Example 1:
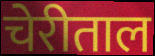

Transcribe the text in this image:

चेरीताल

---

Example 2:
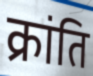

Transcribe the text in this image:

क्रांति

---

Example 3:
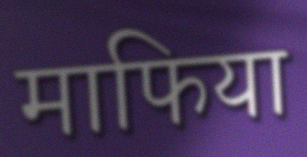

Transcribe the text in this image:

माफिया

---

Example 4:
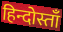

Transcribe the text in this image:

हिन्दोस्ताँ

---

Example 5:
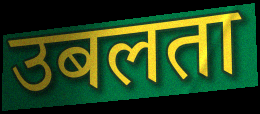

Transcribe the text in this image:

उबलता